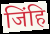
जिंहि